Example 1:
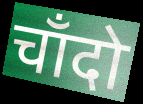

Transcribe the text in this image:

चाँदो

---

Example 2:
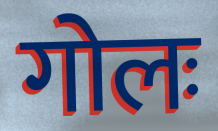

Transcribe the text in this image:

गोलः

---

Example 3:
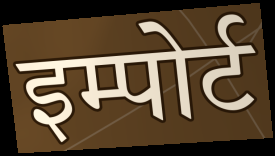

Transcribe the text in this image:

इम्पोर्ट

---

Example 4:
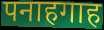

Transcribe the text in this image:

पनाहगाह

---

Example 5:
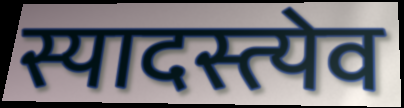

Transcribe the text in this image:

स्यादस्त्येव